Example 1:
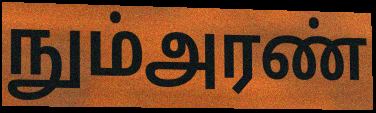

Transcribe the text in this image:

நும்அரண்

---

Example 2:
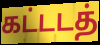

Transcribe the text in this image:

கட்டடத்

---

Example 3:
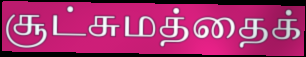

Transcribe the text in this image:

சூட்சுமத்தைக்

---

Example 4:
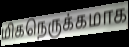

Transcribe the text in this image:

மிகநெருக்கமாக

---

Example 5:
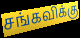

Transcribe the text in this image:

சங்கவிக்கு